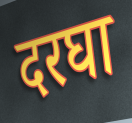
दरघा